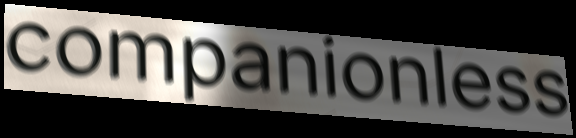
companionless